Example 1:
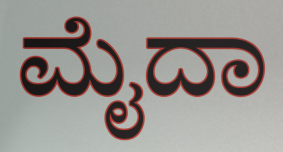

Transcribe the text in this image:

ಮೈದಾ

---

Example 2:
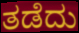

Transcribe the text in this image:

ತಡೆದು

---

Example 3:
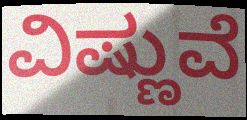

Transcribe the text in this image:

ವಿಷ್ಣುವೆ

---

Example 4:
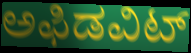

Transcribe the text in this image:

ಅಫಿಡವಿಟ್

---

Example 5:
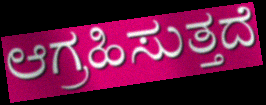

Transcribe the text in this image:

ಆಗ್ರಹಿಸುತ್ತದೆ